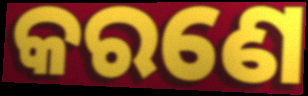
କରଣେ